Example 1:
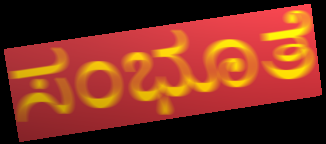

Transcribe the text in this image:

ಸಂಭೂತೆ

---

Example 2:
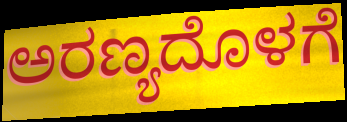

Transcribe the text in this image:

ಅರಣ್ಯದೊಳಗೆ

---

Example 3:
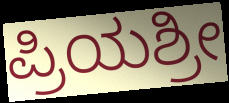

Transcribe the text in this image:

ಪ್ರಿಯಶ್ರೀ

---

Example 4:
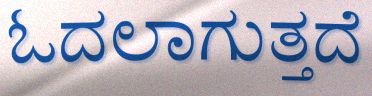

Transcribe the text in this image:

ಓದಲಾಗುತ್ತದೆ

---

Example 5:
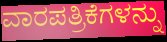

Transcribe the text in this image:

ವಾರಪತ್ರಿಕೆಗಳನ್ನು